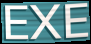
EXE